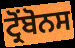
ਟ੍ਰੋਂਬੋਨਸ